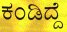
ಕಂಡಿದ್ದೆ